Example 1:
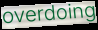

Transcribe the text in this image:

overdoing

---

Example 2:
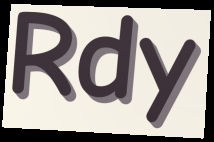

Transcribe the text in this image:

Rdy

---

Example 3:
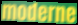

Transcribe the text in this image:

moderne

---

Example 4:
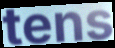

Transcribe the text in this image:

tens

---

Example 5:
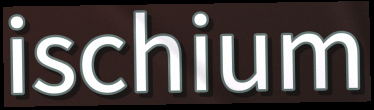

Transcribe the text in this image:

ischium